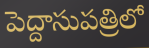
పెద్దాసుపత్రిలో